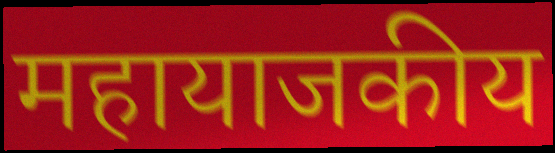
महायाजकीय